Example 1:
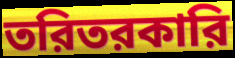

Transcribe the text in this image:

তরিতরকারি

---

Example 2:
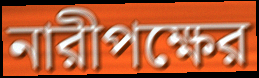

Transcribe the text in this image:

নারীপক্ষের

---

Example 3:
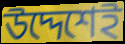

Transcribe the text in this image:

উদ্দেশেই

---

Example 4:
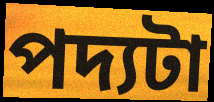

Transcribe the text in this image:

পদ্যটা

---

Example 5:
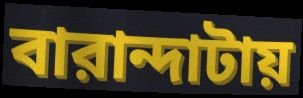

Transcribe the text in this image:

বারান্দাটায়